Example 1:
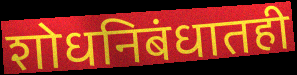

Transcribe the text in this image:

शोधनिबंधातही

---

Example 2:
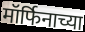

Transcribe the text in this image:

मॉर्फिनाच्या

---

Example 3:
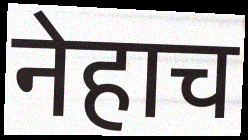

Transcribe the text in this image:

नेहाच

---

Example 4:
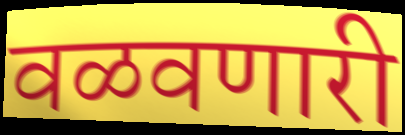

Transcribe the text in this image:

वळवणारी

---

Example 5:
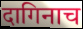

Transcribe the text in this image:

दागिनाच